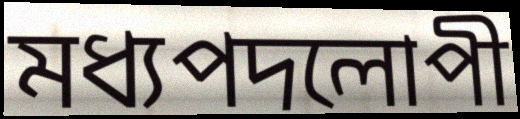
মধ্যপদলোপী